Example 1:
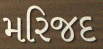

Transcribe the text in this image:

મરિજદ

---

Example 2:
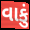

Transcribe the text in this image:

વાકું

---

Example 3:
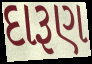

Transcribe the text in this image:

દારૂણ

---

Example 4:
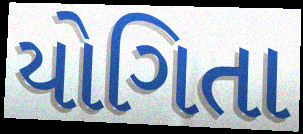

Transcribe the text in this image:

યોગિતા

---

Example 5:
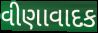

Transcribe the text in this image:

વીણાવાદક